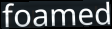
foamed